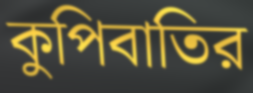
কুপিবাতির